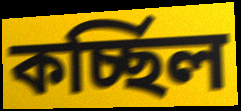
কর্চ্ছিল